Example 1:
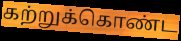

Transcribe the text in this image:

கற்றுக்கொண்ட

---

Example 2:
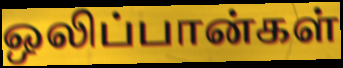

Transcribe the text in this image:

ஒலிப்பான்கள்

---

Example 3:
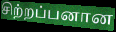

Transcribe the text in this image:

சிற்றப்பனான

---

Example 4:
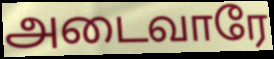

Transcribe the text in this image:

அடைவாரே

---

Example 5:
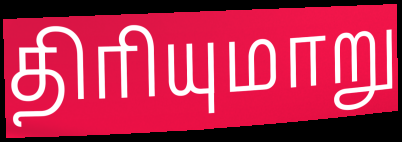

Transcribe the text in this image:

திரியுமாறு